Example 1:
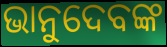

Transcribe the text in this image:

ଭାନୁଦେବଙ୍କ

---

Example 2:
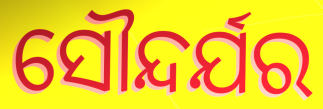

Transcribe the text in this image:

ସୌନ୍ଦର୍ଯର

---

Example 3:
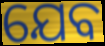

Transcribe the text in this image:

ଯେବ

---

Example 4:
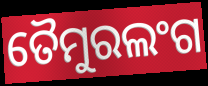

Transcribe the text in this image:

ତୈମୁରଲଂଗ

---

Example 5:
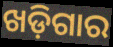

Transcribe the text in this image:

ଖଡ଼ିଗାର